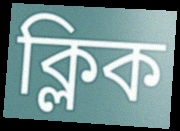
ক্লিক